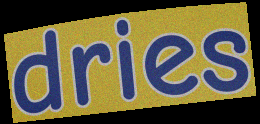
dries